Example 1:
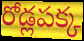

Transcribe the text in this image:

రోడ్లపక్క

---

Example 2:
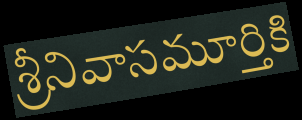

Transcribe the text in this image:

శ్రీనివాసమూర్తికి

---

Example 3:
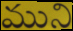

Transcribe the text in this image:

ముని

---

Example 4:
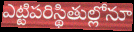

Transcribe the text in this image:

ఎట్టిపరిస్థితుల్లోనూ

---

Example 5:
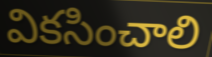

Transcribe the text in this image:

వికసించాలి